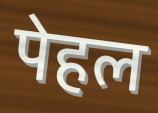
पेहल